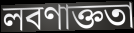
লবণাক্ততা